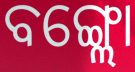
ବଙ୍ଗ୍ଲୋ